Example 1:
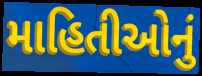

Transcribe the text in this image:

માહિતીઓનું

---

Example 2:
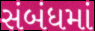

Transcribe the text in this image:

સંબંધમાં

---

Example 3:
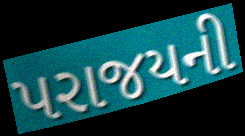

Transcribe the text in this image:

પરાજયની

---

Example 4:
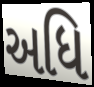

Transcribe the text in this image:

અધિ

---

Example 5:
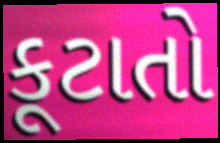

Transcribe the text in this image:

કૂટાતો